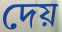
দেয়